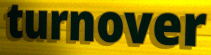
turnover